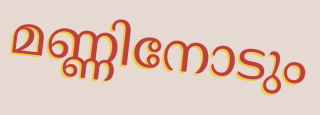
മണ്ണിനോടും